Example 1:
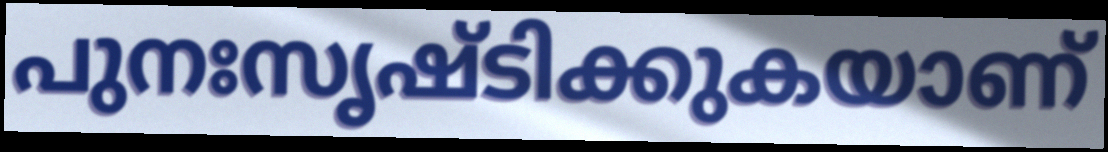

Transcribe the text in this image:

പുനഃസൃഷ്ടിക്കുകയാണ്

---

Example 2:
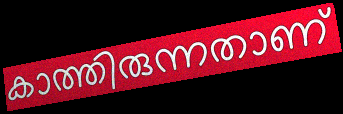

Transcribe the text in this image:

കാത്തിരുന്നതാണ്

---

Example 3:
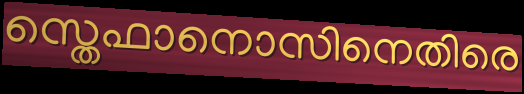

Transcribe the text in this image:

സ്തെഫാനൊസിനെതിരെ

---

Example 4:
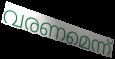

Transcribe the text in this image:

വരണമെന്ന്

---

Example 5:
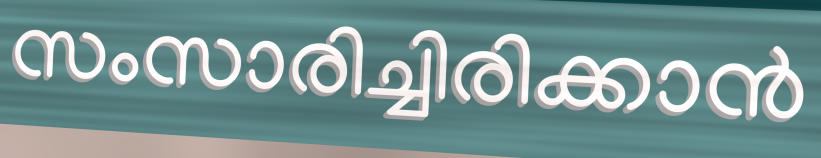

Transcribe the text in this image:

സംസാരിച്ചിരിക്കാൻ